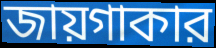
জায়গাকার